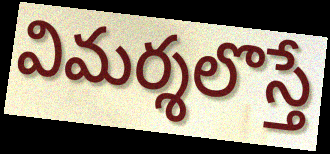
విమర్శలొస్తే